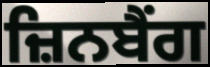
ਜ਼ਿਨਬੈਂਗ